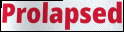
Prolapsed